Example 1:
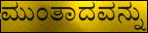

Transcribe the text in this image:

ಮುಂತಾದವನ್ನು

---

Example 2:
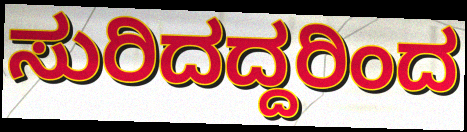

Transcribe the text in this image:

ಸುರಿದದ್ದರಿಂದ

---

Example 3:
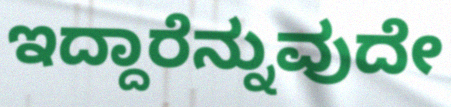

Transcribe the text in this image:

ಇದ್ದಾರೆನ್ನುವುದೇ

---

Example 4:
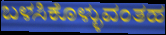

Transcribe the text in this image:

ಬಳಸಿಕೊಳ್ಳುವಂತಹ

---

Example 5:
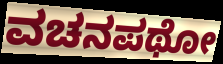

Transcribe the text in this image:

ವಚನಪಥೋ